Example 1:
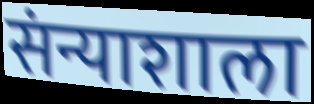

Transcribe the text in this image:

संन्याशाला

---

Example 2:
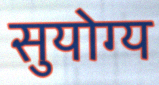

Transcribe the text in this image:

सुयोग्य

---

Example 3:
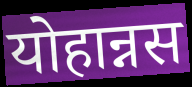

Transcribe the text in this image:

योहान्नस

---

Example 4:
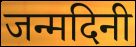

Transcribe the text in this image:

जन्मदिनी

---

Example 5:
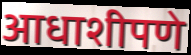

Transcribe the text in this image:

आधाशीपणे